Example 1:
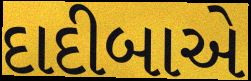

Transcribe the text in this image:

દાદીબાએ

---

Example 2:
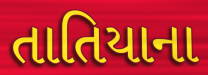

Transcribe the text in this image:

તાતિયાના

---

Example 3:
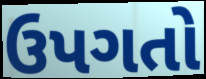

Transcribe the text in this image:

ઉપગતો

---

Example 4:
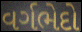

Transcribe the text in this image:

વર્ગભેદો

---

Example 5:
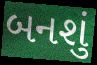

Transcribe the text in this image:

બનશું